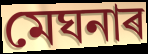
মেঘনাৰ